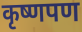
कृष्णपण